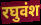
रघुवंश